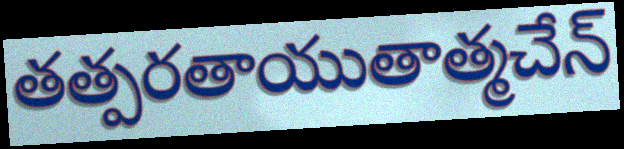
తత్పరతాయుతాత్మచేన్